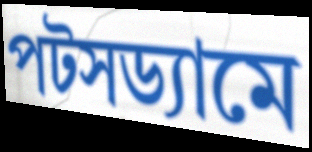
পটসড্যামে